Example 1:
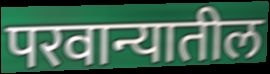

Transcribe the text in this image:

परवान्यातील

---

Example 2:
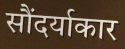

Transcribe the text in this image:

सौंदर्याकार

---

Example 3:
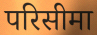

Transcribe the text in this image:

परिसीमा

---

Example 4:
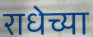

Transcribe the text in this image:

राधेच्या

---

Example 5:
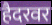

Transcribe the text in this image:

हैदरवर